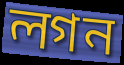
লগন